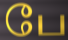
பே